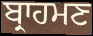
ਬ੍ਰਾਹਮਣ